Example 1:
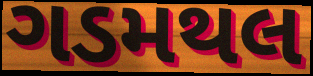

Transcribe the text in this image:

ગડમથલ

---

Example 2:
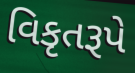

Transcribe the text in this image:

વિકૃતરૂપે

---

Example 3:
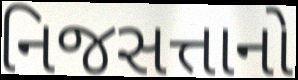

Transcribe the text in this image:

નિજસત્તાનો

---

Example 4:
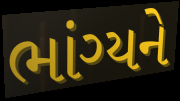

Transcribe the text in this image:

ભાંગ્યને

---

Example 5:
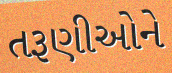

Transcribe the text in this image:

તરૂણીઓને